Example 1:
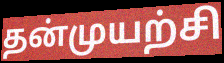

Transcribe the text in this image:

தன்முயற்சி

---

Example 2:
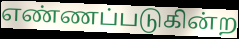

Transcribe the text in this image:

எண்ணப்படுகின்ற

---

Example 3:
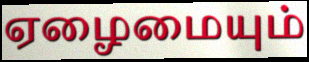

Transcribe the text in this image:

ஏழைமையும்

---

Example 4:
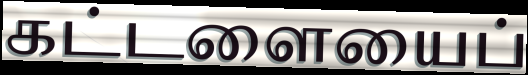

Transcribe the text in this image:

கட்டளையைப்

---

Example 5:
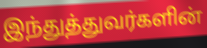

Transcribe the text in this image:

இந்துத்துவர்களின்